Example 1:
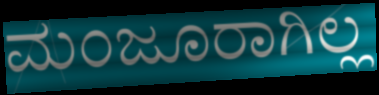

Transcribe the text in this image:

ಮಂಜೂರಾಗಿಲ್ಲ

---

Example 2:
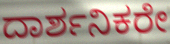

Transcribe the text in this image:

ದಾರ್ಶನಿಕರೇ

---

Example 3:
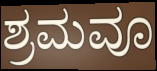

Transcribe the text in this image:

ಶ್ರಮವೂ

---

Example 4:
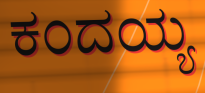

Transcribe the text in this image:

ಕಂದಯ್ಯ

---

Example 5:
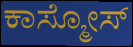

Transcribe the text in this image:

ಕಾಸ್ಮೋಸ್